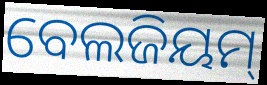
ବେଲଜିୟମ୍